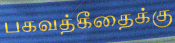
பகவத்கீதைக்கு